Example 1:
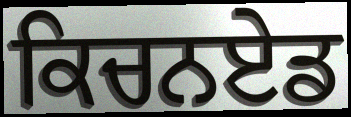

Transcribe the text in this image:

ਕਿਚਨਏਡ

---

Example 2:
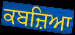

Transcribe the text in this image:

ਕਬਜ਼ਿਆ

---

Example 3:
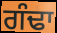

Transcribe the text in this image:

ਗੰਢਾ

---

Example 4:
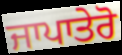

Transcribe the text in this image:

ਜਾਪਾਤੇਰੋ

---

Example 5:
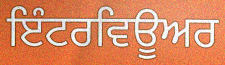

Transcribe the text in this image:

ਇੰਟਰਵਿਊਅਰ